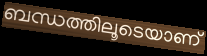
ബന്ധത്തിലൂടെയാണ്